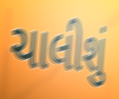
ચાલીશું